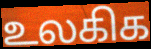
உலகிக